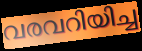
വരവറിയിച്ച